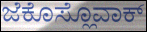
ಜೆಕೊಸ್ಲೊವಾಕ್